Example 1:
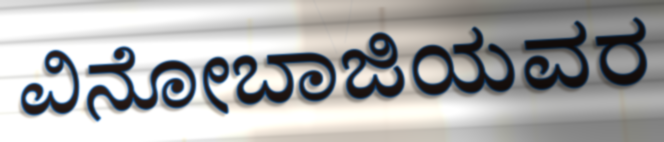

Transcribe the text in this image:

ವಿನೋಬಾಜಿಯವರ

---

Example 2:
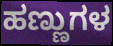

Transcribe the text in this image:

ಹಣ್ಣುಗಳ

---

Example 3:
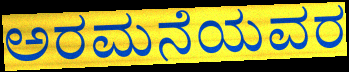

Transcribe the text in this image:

ಅರಮನೆಯವರ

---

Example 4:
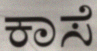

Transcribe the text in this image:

ಕಾಸೆ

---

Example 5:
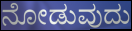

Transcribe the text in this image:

ನೋಡುವುದು